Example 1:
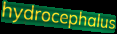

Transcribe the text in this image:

hydrocephalus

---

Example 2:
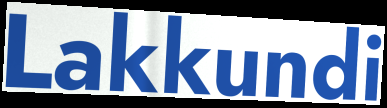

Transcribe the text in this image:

Lakkundi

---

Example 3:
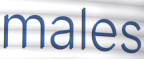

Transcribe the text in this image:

males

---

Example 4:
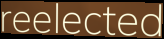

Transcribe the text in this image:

reelected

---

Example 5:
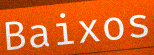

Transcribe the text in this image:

Baixos